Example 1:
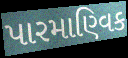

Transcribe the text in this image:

પારમાણ્વિક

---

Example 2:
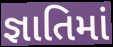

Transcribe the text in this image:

જ્ઞાતિમાં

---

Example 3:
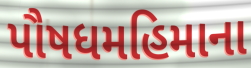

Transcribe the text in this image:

પૌષધમહિમાના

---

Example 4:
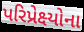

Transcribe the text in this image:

પરિપ્રેક્ષ્યોના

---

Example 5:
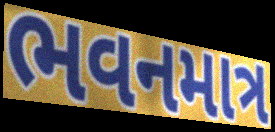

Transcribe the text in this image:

ભવનમાત્ર